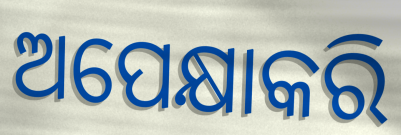
ଅପେକ୍ଷାକରି